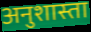
अनुशास्ता